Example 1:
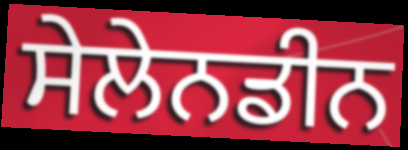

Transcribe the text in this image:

ਸੇਲੇਨਡੀਨ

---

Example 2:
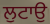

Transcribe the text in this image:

ਲੁਟਾਉ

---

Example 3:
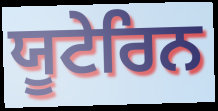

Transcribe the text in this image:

ਯੂਟੇਰਿਨ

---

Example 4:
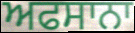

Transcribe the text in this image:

ਅਫਸਾਨਾ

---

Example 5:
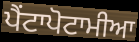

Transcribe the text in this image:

ਪੈਂਟਾਪੋਟਾਮੀਆ